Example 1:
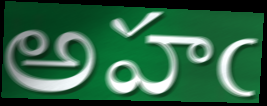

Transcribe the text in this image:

అహఁ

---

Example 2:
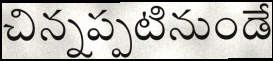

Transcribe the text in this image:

చిన్నప్పటినుండే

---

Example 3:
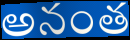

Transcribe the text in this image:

అనంత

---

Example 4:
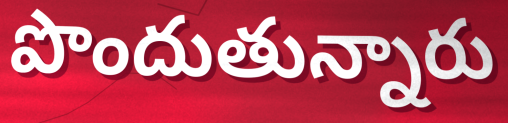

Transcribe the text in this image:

పొందుతున్నారు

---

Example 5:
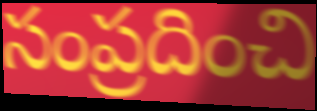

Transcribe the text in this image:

సంప్రదించి